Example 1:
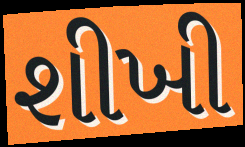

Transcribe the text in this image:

શીખી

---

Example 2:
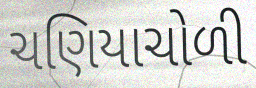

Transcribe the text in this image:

ચણિયાચોળી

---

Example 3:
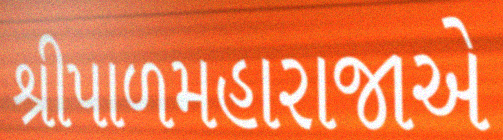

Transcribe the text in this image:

શ્રીપાળમહારાજાએ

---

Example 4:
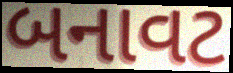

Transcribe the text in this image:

બનાવટ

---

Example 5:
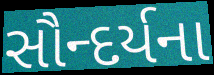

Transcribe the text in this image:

સૌન્દર્યના